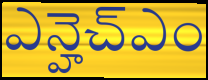
ఎన్హెచ్ఎం